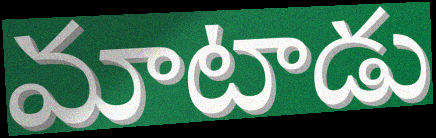
మాటాడు